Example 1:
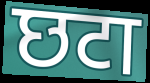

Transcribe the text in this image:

छटा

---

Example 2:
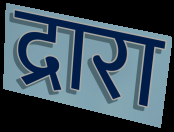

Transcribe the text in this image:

द्रारा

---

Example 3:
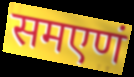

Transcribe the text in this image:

समएणं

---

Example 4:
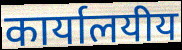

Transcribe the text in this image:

कार्यालयीय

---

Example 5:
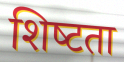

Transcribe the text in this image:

शिष्‍टता